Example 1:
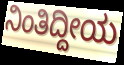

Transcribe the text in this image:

ನಿಂತಿದ್ದೀಯ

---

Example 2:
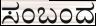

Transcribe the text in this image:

ಸಂಬಂದ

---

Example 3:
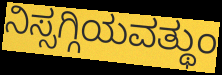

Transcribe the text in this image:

ನಿಸ್ಸಗ್ಗಿಯವತ್ಥುಂ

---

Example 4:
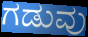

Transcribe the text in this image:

ಗಡುವು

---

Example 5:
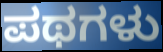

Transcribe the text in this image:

ಪಥಗಳು